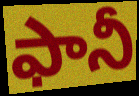
ఫానీ